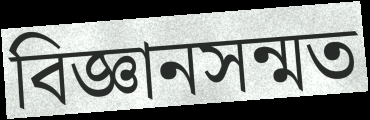
বিজ্ঞানসন্মত